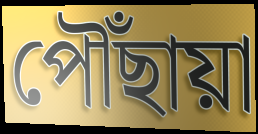
পৌঁছায়া